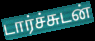
டார்ச்சுடன்